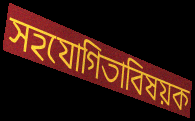
সহযোগিতাবিষয়ক